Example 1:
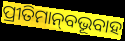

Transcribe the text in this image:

ପ୍ରୀତିମାନ୍‌ବଭୂବାହ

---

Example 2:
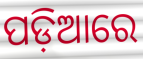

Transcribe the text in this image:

ପଡ଼ିଆରେ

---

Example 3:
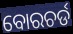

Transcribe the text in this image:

ବୋରଚର୍ଡ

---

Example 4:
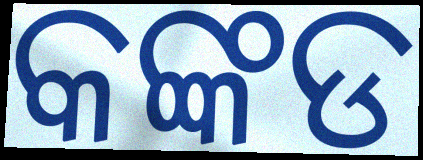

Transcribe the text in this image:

କଙ୍କଡ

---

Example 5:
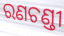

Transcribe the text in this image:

ରଣଚଣ୍ଡୀ